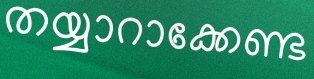
തയ്യാറാക്കേണ്ട